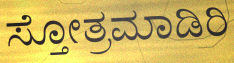
ಸ್ತೋತ್ರಮಾಡಿರಿ